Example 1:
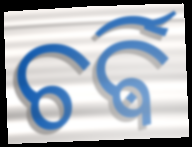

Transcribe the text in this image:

ଚର୍ଵି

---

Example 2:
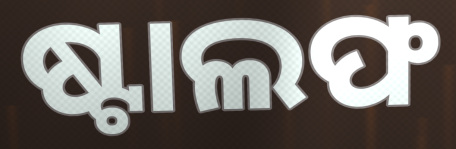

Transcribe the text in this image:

ଷ୍ଟାଲଫ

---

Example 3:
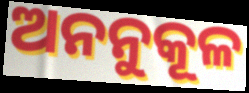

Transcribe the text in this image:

ଅନନୁକୂଳ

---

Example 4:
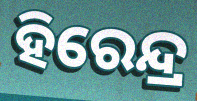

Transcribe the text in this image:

ହିରେନ୍ଦ୍ର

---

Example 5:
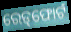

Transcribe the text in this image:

ରେଡ୍‌ଫୋର୍ଟ